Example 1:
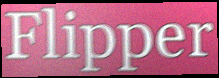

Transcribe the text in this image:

Flipper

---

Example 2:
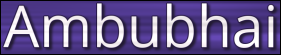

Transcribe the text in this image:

Ambubhai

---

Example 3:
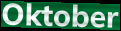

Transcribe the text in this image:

Oktober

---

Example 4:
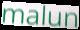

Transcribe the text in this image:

malun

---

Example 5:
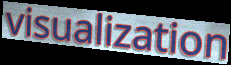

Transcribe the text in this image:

visualization